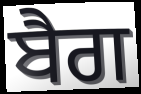
ਬੈਗ